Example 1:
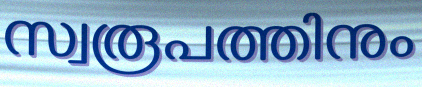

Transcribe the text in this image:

സ്വരൂപത്തിനും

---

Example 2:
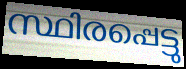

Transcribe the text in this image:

സ്ഥിരപ്പെട്ടു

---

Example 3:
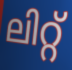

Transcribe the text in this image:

ലിറ്റ്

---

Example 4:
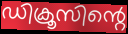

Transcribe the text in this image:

ഡിക്രൂസിന്റെ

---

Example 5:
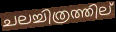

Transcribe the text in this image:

ചലച്ചിത്രത്തില്